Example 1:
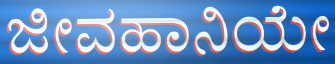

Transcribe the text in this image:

ಜೀವಹಾನಿಯೇ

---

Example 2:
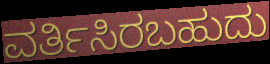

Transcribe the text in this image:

ವರ್ತಿಸಿರಬಹುದು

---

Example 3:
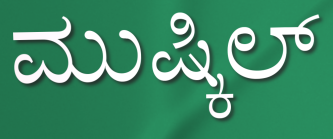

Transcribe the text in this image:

ಮುಷ್ಕಿಲ್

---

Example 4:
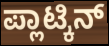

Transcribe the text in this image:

ಪ್ಲಾಟ್ಕಿನ್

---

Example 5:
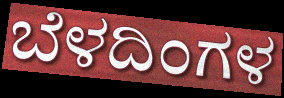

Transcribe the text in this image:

ಬೆಳದಿಂಗಳ